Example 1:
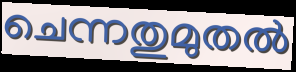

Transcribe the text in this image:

ചെന്നതുമുതൽ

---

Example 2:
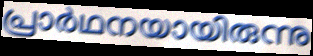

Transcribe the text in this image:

പ്രാർഥനയായിരുന്നു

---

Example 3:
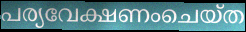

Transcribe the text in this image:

പര്യവേക്ഷണംചെയ്ത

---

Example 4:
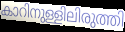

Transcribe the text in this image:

കാറിനുള്ളിലിരുത്തി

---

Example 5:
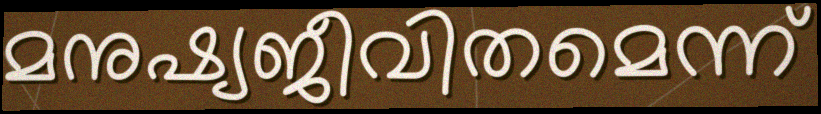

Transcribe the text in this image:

മനുഷ്യജീവിതമെന്ന്